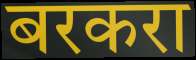
बरकरा